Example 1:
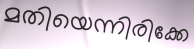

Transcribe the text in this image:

മതിയെന്നിരിക്കേ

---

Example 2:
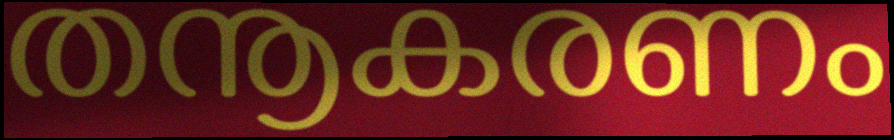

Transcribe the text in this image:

തനൂകരണം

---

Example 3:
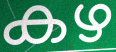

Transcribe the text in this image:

കഴ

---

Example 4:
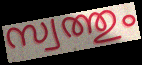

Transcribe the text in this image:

സ്വത്തും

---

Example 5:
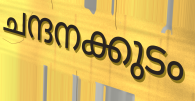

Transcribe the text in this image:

ചന്ദനക്കുടം